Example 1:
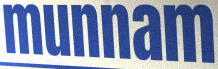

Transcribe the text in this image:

munnam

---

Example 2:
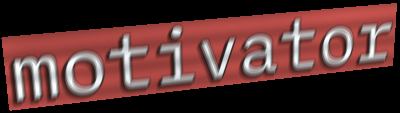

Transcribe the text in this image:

motivator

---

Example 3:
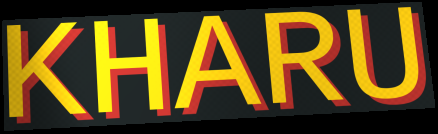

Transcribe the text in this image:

KHARU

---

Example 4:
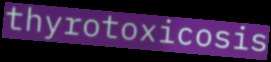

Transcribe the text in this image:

thyrotoxicosis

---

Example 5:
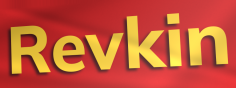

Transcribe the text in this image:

Revkin